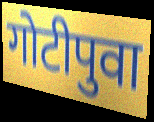
गोटीपुवा